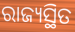
ରାଜ୍ୟସ୍ଥିତ